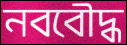
নববৌদ্ধ